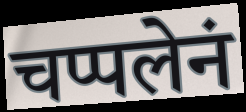
चप्पलेनं